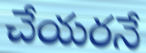
చేయరనే